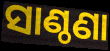
ସାଣ୍ଠଣା